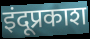
इंदूप्रकाश